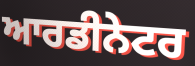
ਆਰਡੀਨੇਟਰ